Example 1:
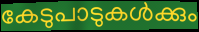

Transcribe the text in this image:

കേടുപാടുകൾക്കും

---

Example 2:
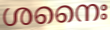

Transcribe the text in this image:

ശനൈഃ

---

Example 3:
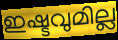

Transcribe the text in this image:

ഇഷ്ടവുമില്ല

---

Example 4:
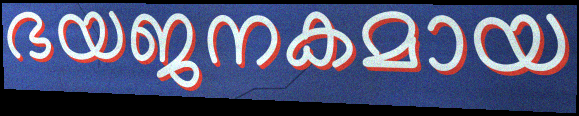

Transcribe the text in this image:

ഭയജനകമായ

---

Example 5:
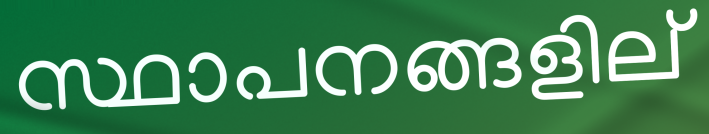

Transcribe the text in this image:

സ്ഥാപനങ്ങളില്